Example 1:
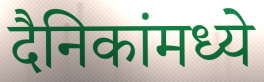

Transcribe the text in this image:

दैनिकांमध्ये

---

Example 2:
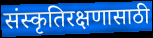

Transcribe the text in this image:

संस्कृतिरक्षणासाठी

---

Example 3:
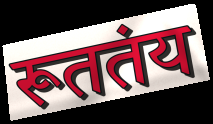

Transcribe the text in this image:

रूततंय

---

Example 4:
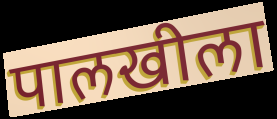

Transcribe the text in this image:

पालखीला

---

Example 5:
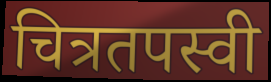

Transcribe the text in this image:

चित्रतपस्वी